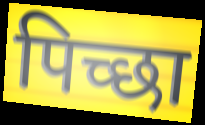
पिच्छा